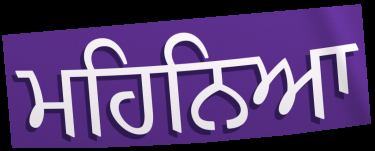
ਮਹਿਨਿਆ